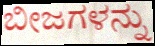
ಬೀಜಗಳನ್ನು